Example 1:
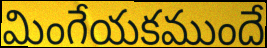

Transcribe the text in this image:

మింగేయకముందే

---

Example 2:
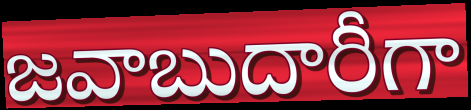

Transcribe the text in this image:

జవాబుదారీగా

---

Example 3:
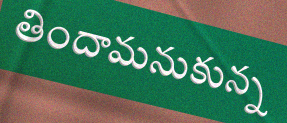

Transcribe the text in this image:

తిందామనుకున్న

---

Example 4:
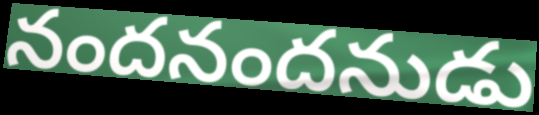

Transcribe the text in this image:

నందనందనుడు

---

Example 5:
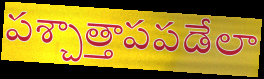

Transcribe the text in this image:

పశ్చాత్తాపపడేలా